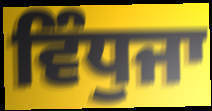
ਵਿੰਧੁਜਾ